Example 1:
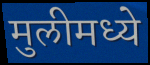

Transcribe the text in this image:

मुलीमध्ये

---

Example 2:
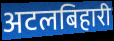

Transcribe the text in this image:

अटलबिहारी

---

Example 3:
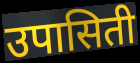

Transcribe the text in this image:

उपासिती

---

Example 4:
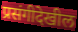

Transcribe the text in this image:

प्रसंगीदेखील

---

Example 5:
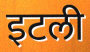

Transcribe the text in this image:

इटली